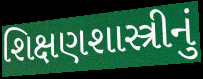
શિક્ષણશાસ્ત્રીનું